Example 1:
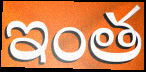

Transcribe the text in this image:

ఇంత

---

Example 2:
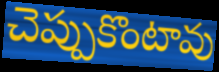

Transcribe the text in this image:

చెప్పుకొంటావు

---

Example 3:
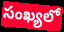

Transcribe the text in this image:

సంఖ్యలో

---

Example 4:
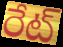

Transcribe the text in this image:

రేట్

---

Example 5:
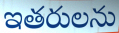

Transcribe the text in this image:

ఇతరులను